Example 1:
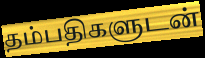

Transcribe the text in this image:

தம்பதிகளுடன்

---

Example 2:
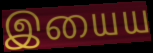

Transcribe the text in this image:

இயைய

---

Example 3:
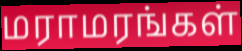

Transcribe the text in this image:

மராமரங்கள்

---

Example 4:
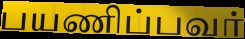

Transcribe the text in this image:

பயணிப்பவர்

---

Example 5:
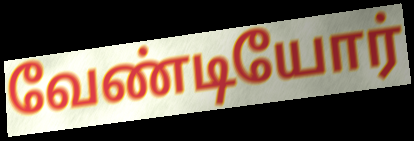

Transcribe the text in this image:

வேண்டியோர்